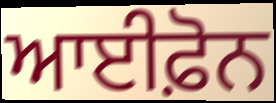
ਆਈਫ਼ੋਨ